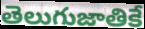
తెలుగుజాతికే